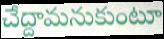
చేద్దామనుకుంటూ